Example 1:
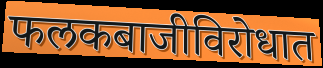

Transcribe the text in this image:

फलकबाजीविरोधात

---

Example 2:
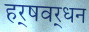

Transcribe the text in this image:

हर्षवर्धन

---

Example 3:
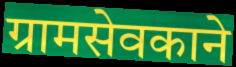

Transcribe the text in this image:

ग्रामसेवकाने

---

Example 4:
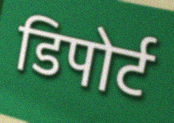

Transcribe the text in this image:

डिपोर्ट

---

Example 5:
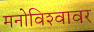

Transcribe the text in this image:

मनोविश्वावर